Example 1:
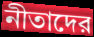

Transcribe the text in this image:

নীতাদের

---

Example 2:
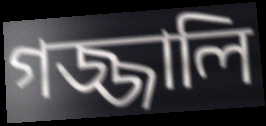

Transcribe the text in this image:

গজ্জালি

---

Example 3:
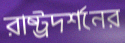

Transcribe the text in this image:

রাষ্ট্রদর্শনের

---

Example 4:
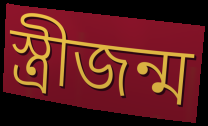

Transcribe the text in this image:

স্ত্রীজন্ম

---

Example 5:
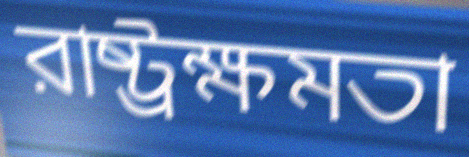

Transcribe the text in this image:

রাষ্ট্রক্ষমতা